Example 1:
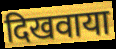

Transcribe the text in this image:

दिखवाया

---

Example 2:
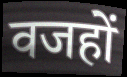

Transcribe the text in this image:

वजहों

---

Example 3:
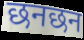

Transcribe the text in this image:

छनछन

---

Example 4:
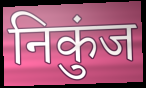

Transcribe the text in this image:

निकुंज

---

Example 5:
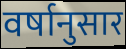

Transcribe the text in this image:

वर्षानुसार